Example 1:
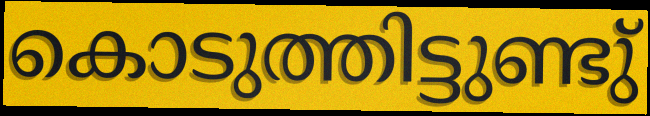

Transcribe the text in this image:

കൊടുത്തിട്ടുണ്ടു്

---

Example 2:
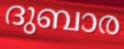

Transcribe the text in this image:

ദുബാര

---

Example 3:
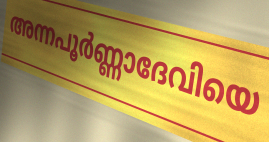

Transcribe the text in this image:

അന്നപൂർണ്ണാദേവിയെ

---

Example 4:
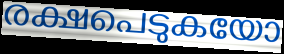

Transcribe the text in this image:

രക്ഷപെടുകയോ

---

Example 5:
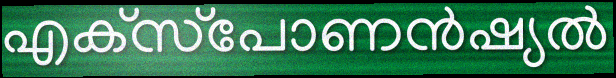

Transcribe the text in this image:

എക്‌സ്‌പോണൻഷ്യൽ